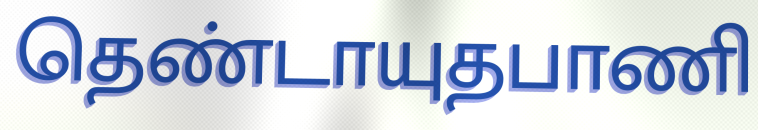
தெண்டாயுதபாணி